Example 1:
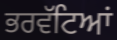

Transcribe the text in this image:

ਭਰਵੱਟਿਆਂ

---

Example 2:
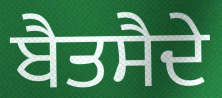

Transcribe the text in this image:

ਬੈਤਸੈਦੇ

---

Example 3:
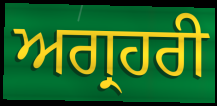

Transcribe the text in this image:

ਅਗ੍ਰਹਰੀ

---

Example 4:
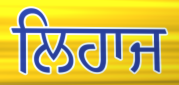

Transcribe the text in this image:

ਲਿਹਾਜ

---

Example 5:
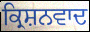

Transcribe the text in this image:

ਕ੍ਰਿਸ਼ਨਵਾਦ